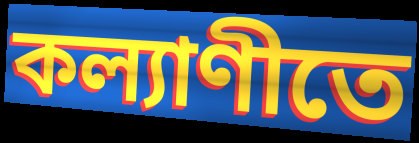
কল্যাণীতে